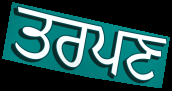
ਤਰਪਣ